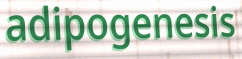
adipogenesis